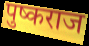
पुष्कराज